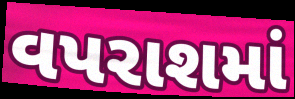
વપરાશમાં